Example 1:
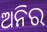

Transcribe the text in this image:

ଅନିର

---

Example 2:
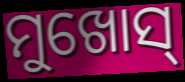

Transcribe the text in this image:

ମୁଖୋସ୍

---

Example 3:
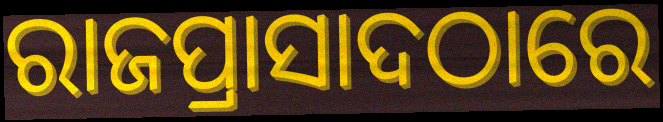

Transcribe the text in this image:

ରାଜପ୍ରାସାଦଠାରେ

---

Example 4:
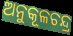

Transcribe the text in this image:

ଅନୁକୂଳଚନ୍ଦ୍ର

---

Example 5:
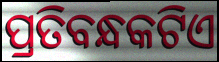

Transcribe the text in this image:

ପ୍ରତିବନ୍ଧକଟିଏ